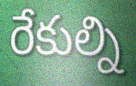
రేకుల్ని